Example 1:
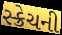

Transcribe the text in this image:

સ્ક્રેચની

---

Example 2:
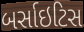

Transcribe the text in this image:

બર્સાઇટિસ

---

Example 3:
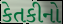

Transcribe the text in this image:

કેતકીનો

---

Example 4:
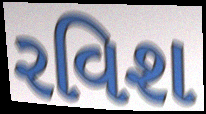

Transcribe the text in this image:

રવિશ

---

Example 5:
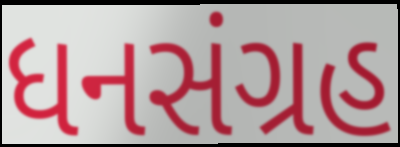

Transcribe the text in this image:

ધનસંગ્રહ